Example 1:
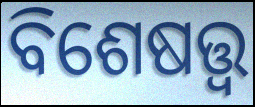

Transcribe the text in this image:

ବିଶେଷତ୍ତ୍ୱ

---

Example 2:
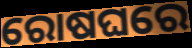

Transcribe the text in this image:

ରୋଷଘରେ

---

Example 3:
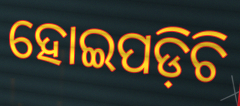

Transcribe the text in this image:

ହୋଇପଡ଼ିଚି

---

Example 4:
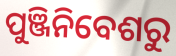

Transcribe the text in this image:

ପୁଞ୍ଜିନିବେଶରୁ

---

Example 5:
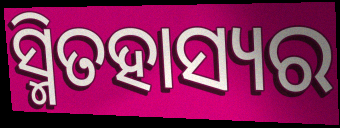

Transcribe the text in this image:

ସ୍ମିତହାସ୍ୟର